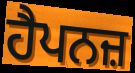
ਹੈਪਨਜ਼